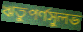
ঋতুপর্ণসুলভ